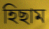
হিছাম